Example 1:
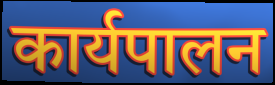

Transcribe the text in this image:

कार्यपालन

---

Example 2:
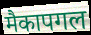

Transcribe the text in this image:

मैकापगल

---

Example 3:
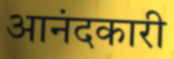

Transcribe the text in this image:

आनंदकारी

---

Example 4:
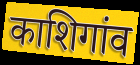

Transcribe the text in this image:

काशिगांव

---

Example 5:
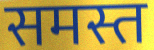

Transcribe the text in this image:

समस्त